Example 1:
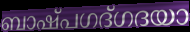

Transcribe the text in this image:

ബാഷ്പഗദ്ഗദയാ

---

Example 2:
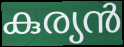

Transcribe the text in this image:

കുര്യൻ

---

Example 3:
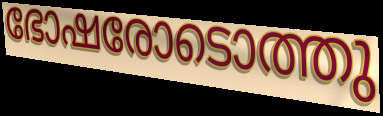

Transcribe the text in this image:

ഭോഷരോടൊത്തു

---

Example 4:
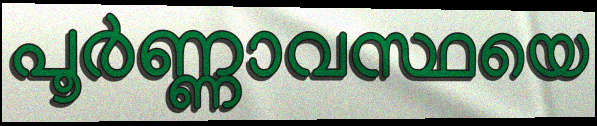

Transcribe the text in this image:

പൂർണ്ണാവസ്ഥയെ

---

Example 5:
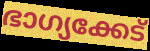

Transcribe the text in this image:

ഭാഗ്യക്കേട്